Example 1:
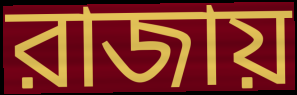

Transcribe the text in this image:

রাজায়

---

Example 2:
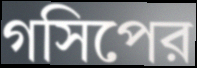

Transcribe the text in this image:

গসিপের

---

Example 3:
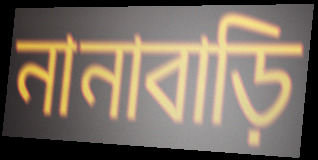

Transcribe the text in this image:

নানাবাড়ি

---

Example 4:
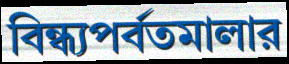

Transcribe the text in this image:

বিন্ধ্যপর্বতমালার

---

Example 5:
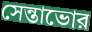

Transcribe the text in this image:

সেন্তাভোর